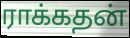
ராக்கதன்